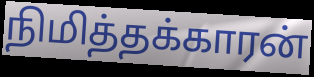
நிமித்தக்காரன்